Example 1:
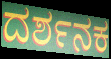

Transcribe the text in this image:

ದರ್ಶನಕ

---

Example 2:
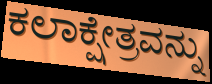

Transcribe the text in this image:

ಕಲಾಕ್ಷೇತ್ರವನ್ನು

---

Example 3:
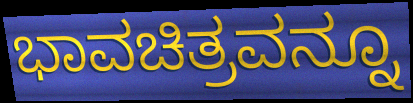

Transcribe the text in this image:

ಭಾವಚಿತ್ರವನ್ನೂ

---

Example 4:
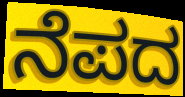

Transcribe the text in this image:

ನೆಪದ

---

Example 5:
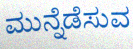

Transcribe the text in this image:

ಮುನ್ನೆಡೆಸುವ